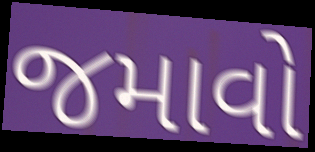
જમાવો